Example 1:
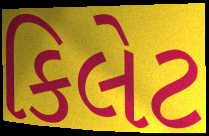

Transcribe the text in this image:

કિલેટ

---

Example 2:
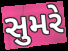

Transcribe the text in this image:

સુમરે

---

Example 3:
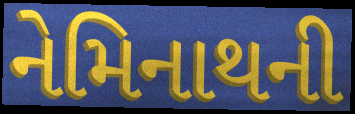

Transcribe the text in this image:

નેમિનાથની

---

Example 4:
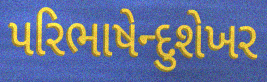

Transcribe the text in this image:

પરિભાષેન્દુશેખર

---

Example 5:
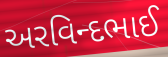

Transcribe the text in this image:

અરવિન્દભાઈ